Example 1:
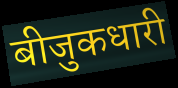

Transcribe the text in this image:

बीजुकधारी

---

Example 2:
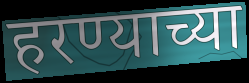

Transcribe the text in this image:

हरण्याच्या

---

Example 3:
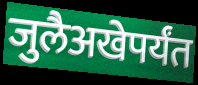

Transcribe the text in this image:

जुलैअखेपर्यंत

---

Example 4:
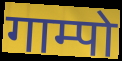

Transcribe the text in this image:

गाम्पो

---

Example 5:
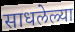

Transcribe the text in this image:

साधलेल्या